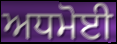
ਅਧਮੋਈ